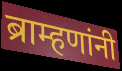
ब्राम्हणांनी